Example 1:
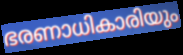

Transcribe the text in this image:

ഭരണാധികാരിയും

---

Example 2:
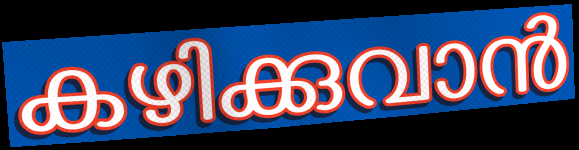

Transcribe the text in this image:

കഴിക്കുവാൻ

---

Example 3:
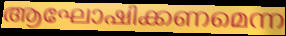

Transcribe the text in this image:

ആഘോഷിക്കണമെന്ന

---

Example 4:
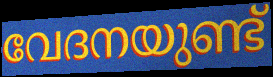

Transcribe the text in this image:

വേദനയുണ്ട്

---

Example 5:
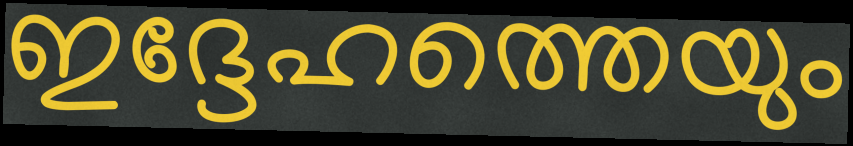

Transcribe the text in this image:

ഇദ്ദേഹത്തെയും